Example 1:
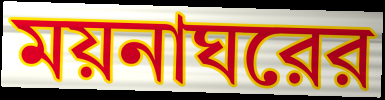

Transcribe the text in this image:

ময়নাঘরের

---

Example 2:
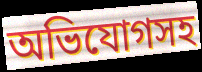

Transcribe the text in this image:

অভিযোগসহ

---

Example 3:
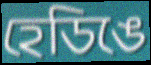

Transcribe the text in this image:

হেডিঙে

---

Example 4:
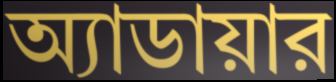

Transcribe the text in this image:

অ্যাডায়ার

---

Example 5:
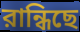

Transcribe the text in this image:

রান্ধিছে